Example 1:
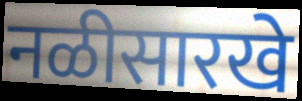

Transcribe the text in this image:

नळीसारखे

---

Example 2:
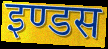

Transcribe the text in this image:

इण्डस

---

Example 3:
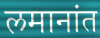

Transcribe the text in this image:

लमानांत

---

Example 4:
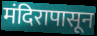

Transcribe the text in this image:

मंदिरापासून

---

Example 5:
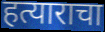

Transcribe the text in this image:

हत्याराचा